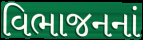
વિભાજનનાં